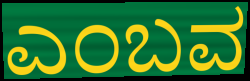
ಎಂಬವ